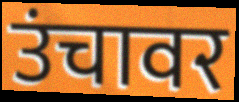
उंचावर